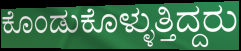
ಕೊಂಡುಕೊಳ್ಳುತ್ತಿದ್ದರು